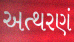
અત્થરણં